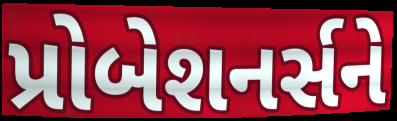
પ્રોબેશનર્સને